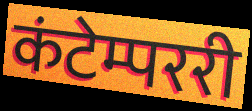
कंटेम्पररी